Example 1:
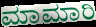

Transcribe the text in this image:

ಮಾಮಾರಿ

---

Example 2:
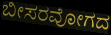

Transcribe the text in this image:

ಬೀಸರವೋಗದ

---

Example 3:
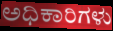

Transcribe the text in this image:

ಅಧಿಕಾರಿಗಳು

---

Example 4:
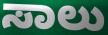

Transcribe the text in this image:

ಸಾಲು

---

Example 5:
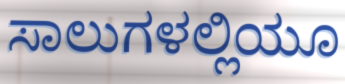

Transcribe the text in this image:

ಸಾಲುಗಳಲ್ಲಿಯೂ